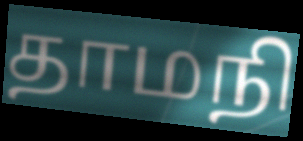
தாமநி